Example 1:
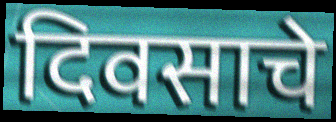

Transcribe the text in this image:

दिवसाचे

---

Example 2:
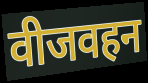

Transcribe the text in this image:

वीजवहन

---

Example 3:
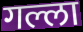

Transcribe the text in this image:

गल्ला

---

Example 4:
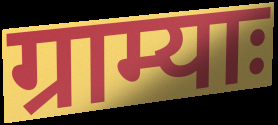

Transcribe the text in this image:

ग्राम्याः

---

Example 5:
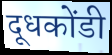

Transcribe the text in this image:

दूधकोंडी